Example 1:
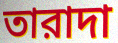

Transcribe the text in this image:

তারাদা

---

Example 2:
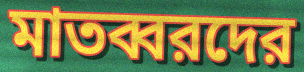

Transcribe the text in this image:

মাতব্বরদের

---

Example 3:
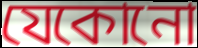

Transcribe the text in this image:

যেকোনো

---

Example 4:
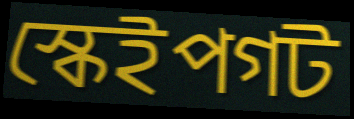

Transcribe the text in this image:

স্কেইপগট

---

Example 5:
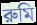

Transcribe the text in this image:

রুমি